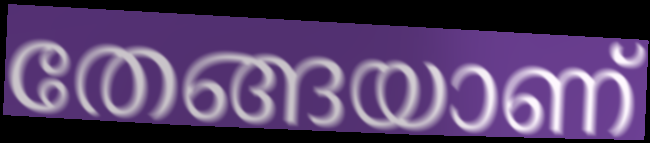
തേങ്ങയാണ്